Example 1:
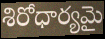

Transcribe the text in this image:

శిరోధార్యమై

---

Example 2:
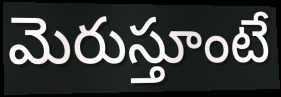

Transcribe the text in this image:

మెరుస్తూంటే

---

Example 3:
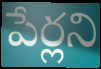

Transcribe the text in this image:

పేర్లని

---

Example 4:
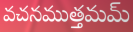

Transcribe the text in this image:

వచనముత్తమమ్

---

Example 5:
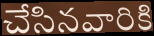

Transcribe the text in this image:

చేసినవారికి